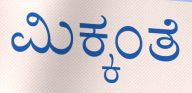
ಮಿಕ್ಕಂತೆ